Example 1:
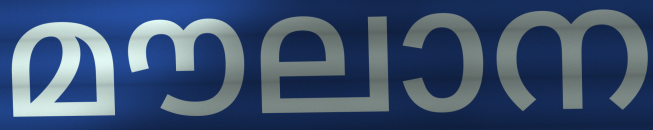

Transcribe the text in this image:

മൗലാന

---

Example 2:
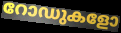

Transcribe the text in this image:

റോഡുകളോ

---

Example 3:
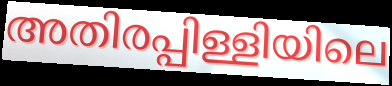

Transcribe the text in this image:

അതിരപ്പിള്ളിയിലെ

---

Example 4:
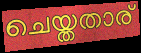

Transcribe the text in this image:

ചെയ്തതാര്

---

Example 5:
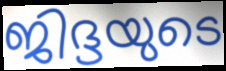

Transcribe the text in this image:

ജിദ്ദയുടെ